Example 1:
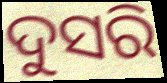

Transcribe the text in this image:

ଦୁସରି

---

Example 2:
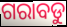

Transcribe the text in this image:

ଗରାବଡୁ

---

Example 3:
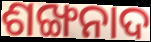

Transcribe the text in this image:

ଶଙ୍ଖନାଦ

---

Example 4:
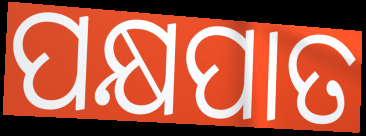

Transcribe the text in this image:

ପକ୍ଷପାତ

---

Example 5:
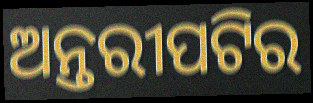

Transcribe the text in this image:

ଅନ୍ତରୀପଟିର